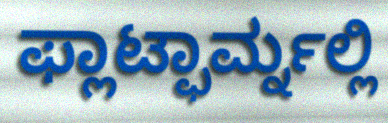
ಫ್ಲಾಟ್ಫಾರ್ಮ್ನಲ್ಲಿ